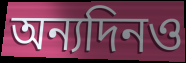
অন্যদিনও